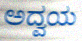
ಅದ್ವಯ